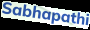
Sabhapathi